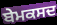
ਬੇਮਕਸਦ